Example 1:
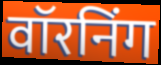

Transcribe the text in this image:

वॉरनिंग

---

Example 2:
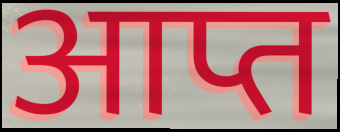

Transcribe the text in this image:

आप्त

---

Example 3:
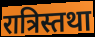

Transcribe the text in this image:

रात्रिस्तथा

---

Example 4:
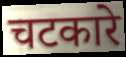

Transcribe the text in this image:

चटकारे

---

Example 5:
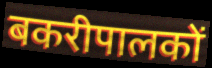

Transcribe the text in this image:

बकरीपालकों